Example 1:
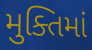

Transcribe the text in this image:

મુક્તિમાં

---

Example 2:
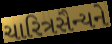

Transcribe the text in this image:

ચારિત્રસૈન્યને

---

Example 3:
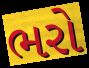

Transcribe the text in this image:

ભરો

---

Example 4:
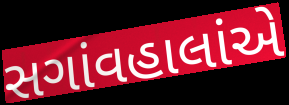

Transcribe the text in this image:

સગાંવહાલાંએ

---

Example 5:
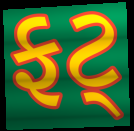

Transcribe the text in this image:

ફટ્